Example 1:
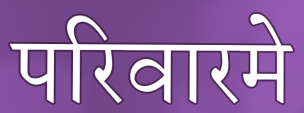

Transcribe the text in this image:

परिवारमे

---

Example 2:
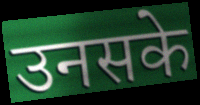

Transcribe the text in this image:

उनसके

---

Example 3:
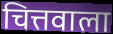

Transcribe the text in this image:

चित्तवाला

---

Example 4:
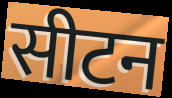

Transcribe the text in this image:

सीटन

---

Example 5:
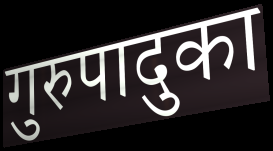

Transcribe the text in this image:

गुरुपादुका